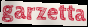
garzetta